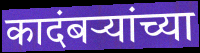
कादंबर्‍यांच्या